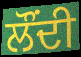
ਲੌਂਦੀ